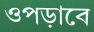
ওপড়াবে